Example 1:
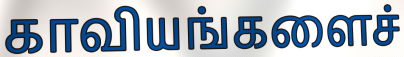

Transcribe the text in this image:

காவியங்களைச்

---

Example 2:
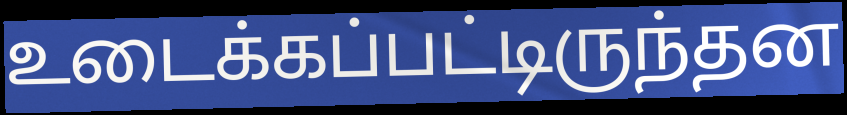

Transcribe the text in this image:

உடைக்கப்பட்டிருந்தன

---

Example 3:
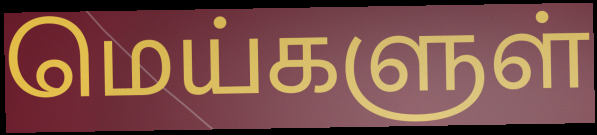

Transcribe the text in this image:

மெய்களுள்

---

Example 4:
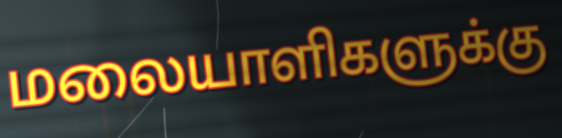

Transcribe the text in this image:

மலையாளிகளுக்கு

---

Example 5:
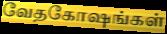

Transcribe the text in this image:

வேதகோஷங்கள்